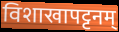
विशाखापट्टनम्